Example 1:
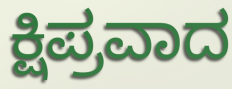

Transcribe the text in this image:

ಕ್ಷಿಪ್ರವಾದ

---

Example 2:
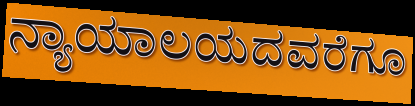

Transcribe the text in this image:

ನ್ಯಾಯಾಲಯದವರೆಗೂ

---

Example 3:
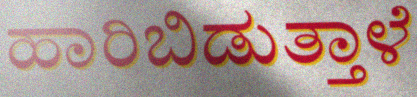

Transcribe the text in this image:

ಹಾರಿಬಿಡುತ್ತಾಳೆ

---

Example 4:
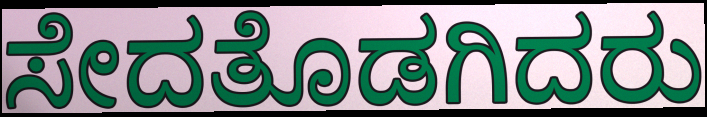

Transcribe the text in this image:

ಸೇದತೊಡಗಿದರು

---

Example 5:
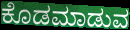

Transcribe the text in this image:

ಕೊಡಮಾಡುವ